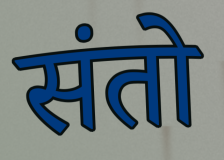
संतो